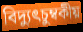
বিদ্যুৎচুম্বকীয়